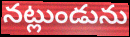
నట్లుండును